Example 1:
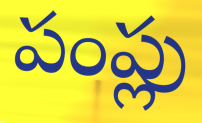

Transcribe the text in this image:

పంప్లు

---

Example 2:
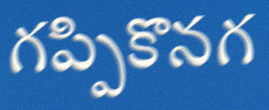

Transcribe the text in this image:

గప్పికొనగ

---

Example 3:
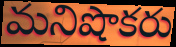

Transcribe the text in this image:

మనిషొకరు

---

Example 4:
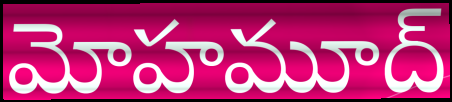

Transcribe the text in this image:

మోహమూద్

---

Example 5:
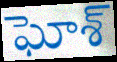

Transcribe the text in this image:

ఘోశ్